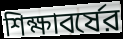
শিক্ষাবর্ষের